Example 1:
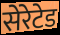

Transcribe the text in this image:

सेरेटेड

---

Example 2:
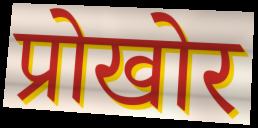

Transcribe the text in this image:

प्रोखोर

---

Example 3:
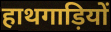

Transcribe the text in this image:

हाथगाड़ियों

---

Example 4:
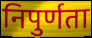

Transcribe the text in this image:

निपुर्णता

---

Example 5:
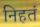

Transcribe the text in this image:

निहतं